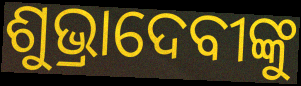
ଶୁଭ୍ରାଦେବୀଙ୍କୁ